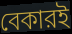
বেকারই